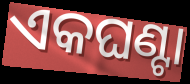
ଏକଘଣ୍ଟା